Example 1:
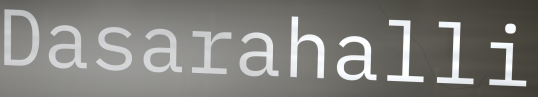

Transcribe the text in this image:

Dasarahalli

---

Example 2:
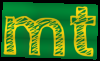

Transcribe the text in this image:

mt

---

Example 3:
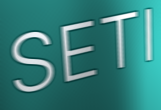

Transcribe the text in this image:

SETI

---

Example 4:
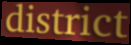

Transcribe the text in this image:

district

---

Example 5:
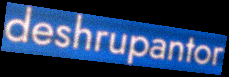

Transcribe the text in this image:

deshrupantor